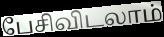
பேசிவிடலாம்